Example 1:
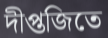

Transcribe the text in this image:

দীপ্তজিতে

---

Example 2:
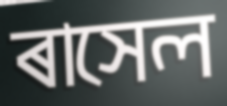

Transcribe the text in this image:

ৰাসেল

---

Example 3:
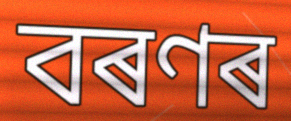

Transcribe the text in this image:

বৰণৰ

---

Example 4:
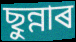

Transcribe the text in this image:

ছুন্নাৰ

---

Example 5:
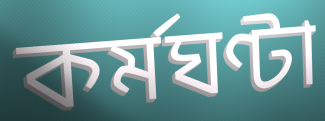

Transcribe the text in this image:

কৰ্মঘণ্টা